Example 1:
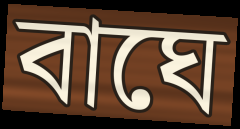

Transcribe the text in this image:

বাঘে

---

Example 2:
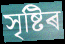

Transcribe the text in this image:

সৃষ্টিৰ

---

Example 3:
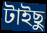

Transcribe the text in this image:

টাইছু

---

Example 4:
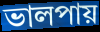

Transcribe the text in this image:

ভালপায়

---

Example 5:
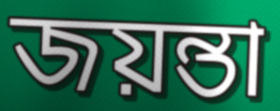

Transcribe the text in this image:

জয়ন্তা